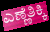
ಎಣ್ಣೆತಿಕ್ಕಿ